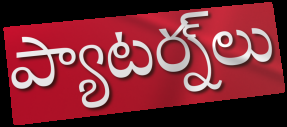
ప్యాటర్న్‌లు